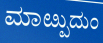
ಮಾೞ್ಪುದುಂ